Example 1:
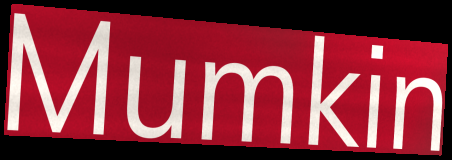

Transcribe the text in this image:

Mumkin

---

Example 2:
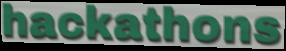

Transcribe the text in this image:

hackathons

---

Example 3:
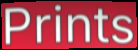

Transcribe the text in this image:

Prints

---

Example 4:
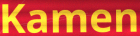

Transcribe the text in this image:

Kamen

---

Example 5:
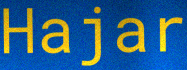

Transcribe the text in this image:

Hajar